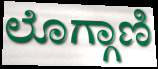
ಲೊಗ್ಗಾಣಿ